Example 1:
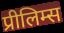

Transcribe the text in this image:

प्रीलिम्स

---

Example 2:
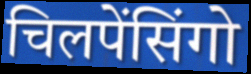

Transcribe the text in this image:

चिलपेंसिंगो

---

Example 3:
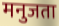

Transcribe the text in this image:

मनुजता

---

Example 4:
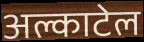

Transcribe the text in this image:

अल्काटेल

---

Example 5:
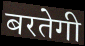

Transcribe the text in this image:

बरतेगी